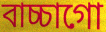
বাচ্চাগো